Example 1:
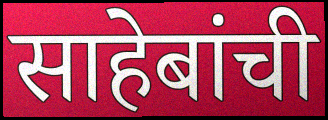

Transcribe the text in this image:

साहेबांची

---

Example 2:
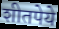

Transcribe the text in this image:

शीतपेये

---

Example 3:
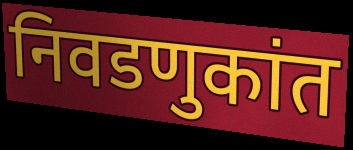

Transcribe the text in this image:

निवडणुकांत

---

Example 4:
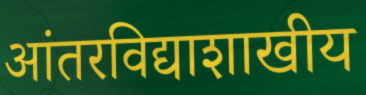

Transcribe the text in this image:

आंतरविद्याशाखीय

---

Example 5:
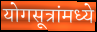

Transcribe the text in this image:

योगसूत्रांमध्ये